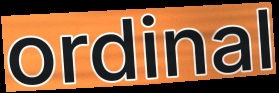
ordinal